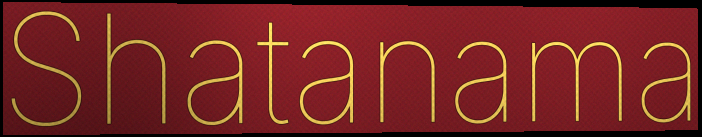
Shatanama